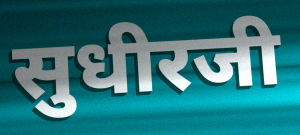
सुधीरजी